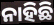
ନାହିଛି